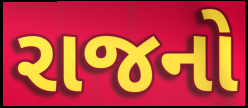
રાજનો